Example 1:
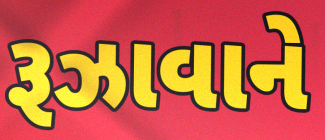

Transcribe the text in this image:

રૂઝાવાને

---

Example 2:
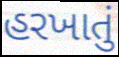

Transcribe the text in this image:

હરખાતું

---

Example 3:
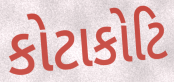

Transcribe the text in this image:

કોટાકોટિ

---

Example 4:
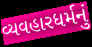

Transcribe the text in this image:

વ્યવહારધર્મનું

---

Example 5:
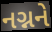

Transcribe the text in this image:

નગ્નને